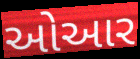
ઓઆર